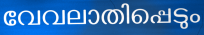
വേവലാതിപ്പെടും